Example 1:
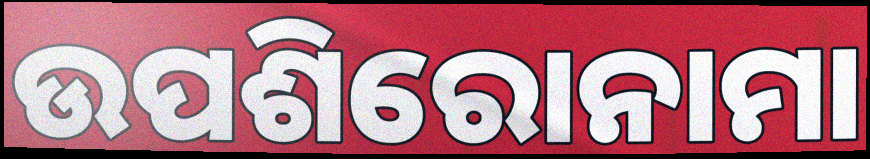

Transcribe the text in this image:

ଉପଶିରୋନାମା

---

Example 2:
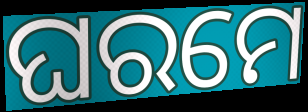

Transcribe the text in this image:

ଘରମେ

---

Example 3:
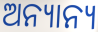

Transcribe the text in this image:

ଅନ୍ଯାନ୍ଯ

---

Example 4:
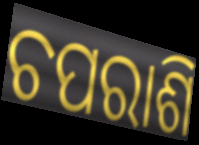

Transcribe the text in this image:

ଚପରାଶି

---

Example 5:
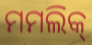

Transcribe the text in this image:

ମମଲିକ୍